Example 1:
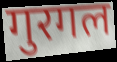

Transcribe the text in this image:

गुरगल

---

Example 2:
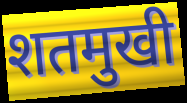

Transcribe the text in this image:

शतमुखी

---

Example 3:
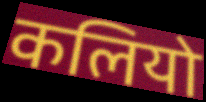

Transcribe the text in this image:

कलियो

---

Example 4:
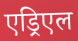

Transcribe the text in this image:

एड्रिएल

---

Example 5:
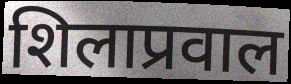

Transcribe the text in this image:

शिलाप्रवाल